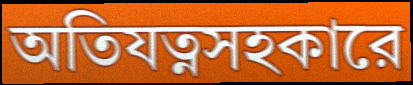
অতিযত্নসহকারে